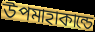
উপমাহাকান্ডে